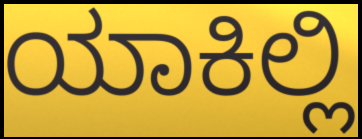
ಯಾಕಿಲ್ಲಿ